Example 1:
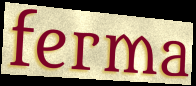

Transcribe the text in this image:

ferma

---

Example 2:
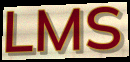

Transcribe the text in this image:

LMS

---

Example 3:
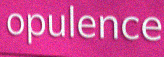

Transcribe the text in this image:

opulence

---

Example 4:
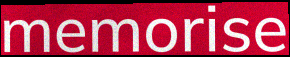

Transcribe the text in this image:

memorise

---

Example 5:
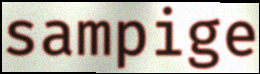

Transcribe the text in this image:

sampige